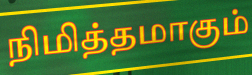
நிமித்தமாகும்